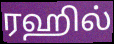
ரஹில்